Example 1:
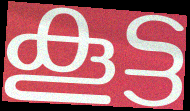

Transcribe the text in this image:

കൂട്ട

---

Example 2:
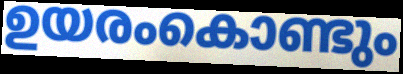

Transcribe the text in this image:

ഉയരംകൊണ്ടും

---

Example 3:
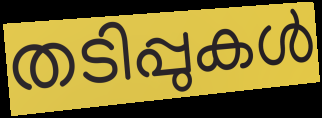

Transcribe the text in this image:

തടിപ്പുകൾ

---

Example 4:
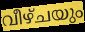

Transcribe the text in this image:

വീഴ്ചയും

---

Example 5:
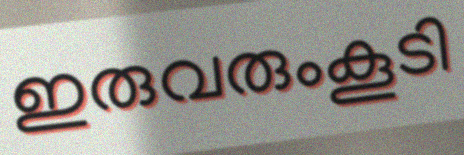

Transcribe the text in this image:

ഇരുവരുംകൂടി